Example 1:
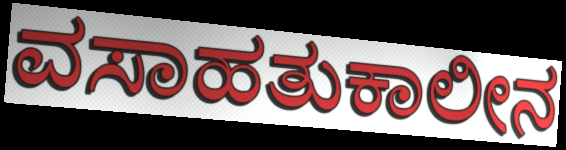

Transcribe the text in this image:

ವಸಾಹತುಕಾಲೀನ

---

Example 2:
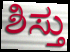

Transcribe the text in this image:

ಶಿಸ್ತು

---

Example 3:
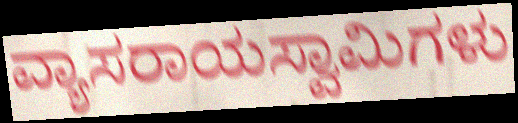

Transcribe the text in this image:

ವ್ಯಾಸರಾಯಸ್ವಾಮಿಗಳು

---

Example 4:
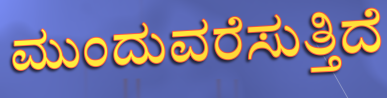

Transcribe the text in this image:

ಮುಂದುವರೆಸುತ್ತಿದೆ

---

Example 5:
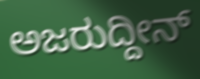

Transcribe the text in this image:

ಅಜರುದ್ದೀನ್